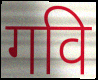
गवि